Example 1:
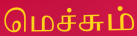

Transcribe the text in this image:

மெச்சும்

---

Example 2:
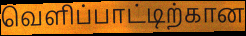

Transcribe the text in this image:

வெளிப்பாட்டிற்கான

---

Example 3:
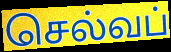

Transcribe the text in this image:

செல்வப்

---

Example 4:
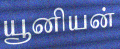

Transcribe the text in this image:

யூனியன்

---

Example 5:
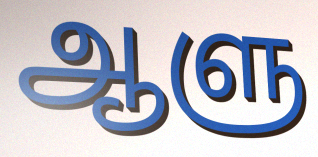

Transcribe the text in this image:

ஆளு